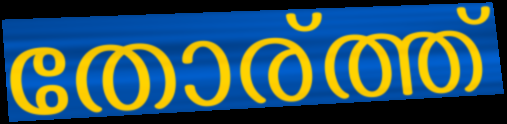
തോര്ത്ത്